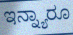
ಇನ್ನ್ಯಾರೂ